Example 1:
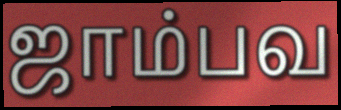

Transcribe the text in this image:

ஜாம்பவ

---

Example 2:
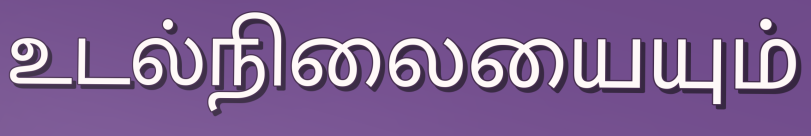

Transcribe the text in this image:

உடல்நிலையையும்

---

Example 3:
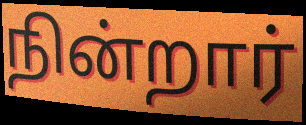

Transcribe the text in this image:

நின்றார்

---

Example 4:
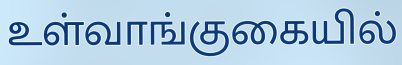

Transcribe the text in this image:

உள்வாங்குகையில்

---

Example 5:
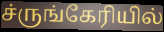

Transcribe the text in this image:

ச்ருங்கேரியில்